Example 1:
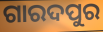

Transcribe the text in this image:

ଗାରଦପୁର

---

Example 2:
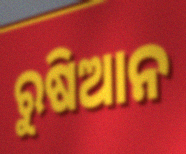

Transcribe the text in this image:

ରୁଷିଆନ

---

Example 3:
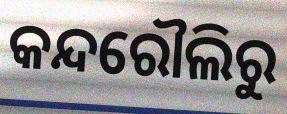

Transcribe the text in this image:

କନ୍ଦରୌଲିରୁ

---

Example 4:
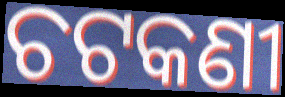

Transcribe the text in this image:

ଚଟକଣୀ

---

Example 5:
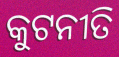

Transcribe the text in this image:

କୁଟନୀତି